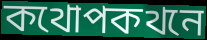
কথোপকথনে